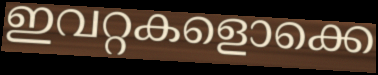
ഇവറ്റകളൊക്കെ